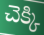
చెక్కి